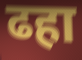
ढहा